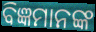
ବିଜ୍ଞମାନଙ୍କ